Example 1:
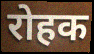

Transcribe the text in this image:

रोहक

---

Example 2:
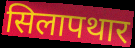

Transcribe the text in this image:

सिलापथार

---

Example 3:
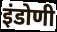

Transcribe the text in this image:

इंडोणी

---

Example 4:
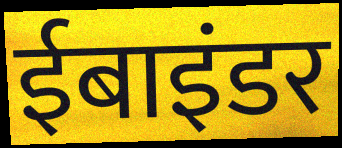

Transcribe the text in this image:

ईबाइंडर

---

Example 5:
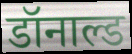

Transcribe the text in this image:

डॉनाल्ड